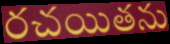
రచయితను